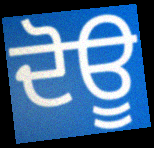
ਦੋਊ